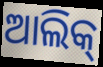
ଆଲିକ୍